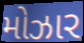
મોઝાર